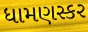
ધામણસ્કર